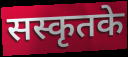
सस्कृतके